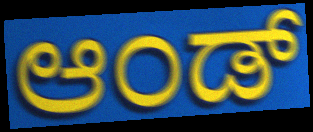
ಆಂಡ್